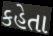
કહેતા